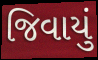
જિવાયું